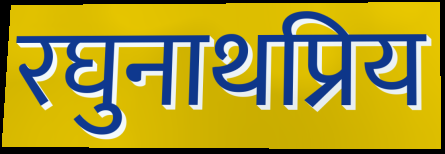
रघुनाथप्रिय